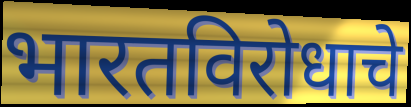
भारतविरोधाचे